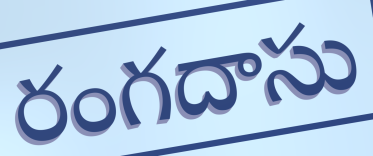
రంగదాసు